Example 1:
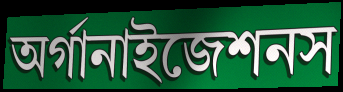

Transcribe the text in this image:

অর্গানাইজেশনস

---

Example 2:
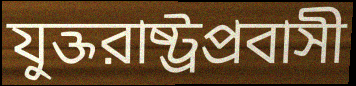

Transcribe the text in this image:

যুক্তরাষ্ট্রপ্রবাসী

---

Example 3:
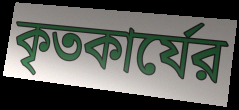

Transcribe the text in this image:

কৃতকার্যের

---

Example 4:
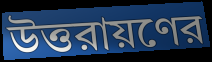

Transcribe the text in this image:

উত্তরায়ণের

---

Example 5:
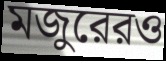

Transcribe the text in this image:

মজুরেরও